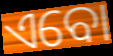
ଏବୋ